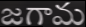
జగామ